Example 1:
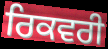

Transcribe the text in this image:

ਰਿਕਵਰੀ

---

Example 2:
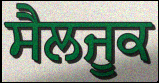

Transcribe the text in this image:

ਸੈਲਜੂਕ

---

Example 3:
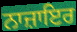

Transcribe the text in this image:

ਨਾਜ਼ਾਇਰ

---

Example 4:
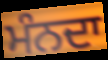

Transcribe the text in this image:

ਮੰਨਦਾ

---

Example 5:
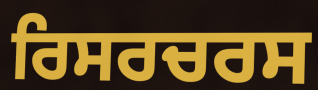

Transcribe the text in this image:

ਰਿਸਰਚਰਸ